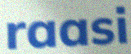
raasi